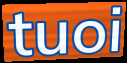
tuoi